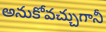
అనుకోవచ్చుగానీ